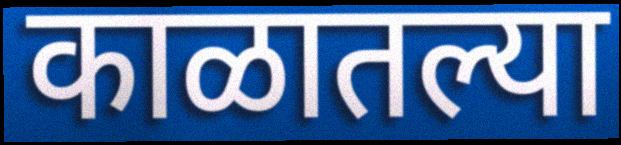
काळातल्या